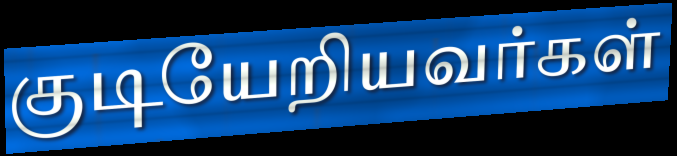
குடியேறியவர்கள்